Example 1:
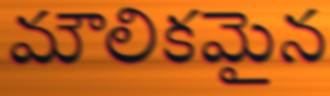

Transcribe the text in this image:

మౌలికమైన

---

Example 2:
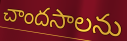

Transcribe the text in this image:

చాందసాలను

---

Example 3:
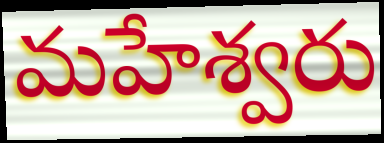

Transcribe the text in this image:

మహేశ్వరు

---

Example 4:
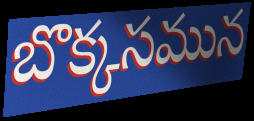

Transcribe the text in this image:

బొక్కసమున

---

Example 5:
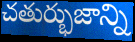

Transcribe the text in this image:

చతుర్భుజాన్ని